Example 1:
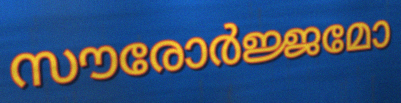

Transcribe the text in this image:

സൗരോർജ്ജമോ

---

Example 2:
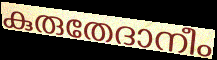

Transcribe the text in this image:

കുരുതേദാനീം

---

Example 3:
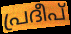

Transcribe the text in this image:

പ്രദീപ്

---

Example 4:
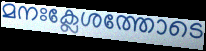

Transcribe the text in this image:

മനഃക്ലേശത്തോടെ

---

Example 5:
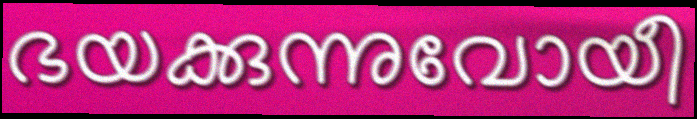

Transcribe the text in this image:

ഭയക്കുന്നുവോയീ